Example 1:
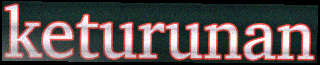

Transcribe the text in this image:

keturunan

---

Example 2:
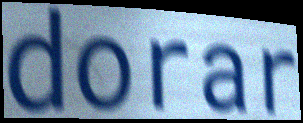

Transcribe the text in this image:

dorar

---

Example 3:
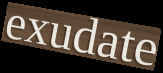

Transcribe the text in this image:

exudate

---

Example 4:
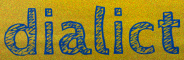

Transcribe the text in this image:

dialict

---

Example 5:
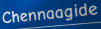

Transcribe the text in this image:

Chennaagide